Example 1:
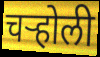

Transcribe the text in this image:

चऱ्होली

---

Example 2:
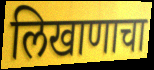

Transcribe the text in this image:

लिखाणाचा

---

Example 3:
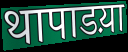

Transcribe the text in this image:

थापाडय़ा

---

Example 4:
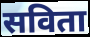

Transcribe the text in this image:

सविता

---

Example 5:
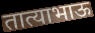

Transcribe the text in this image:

तात्याभाऊ